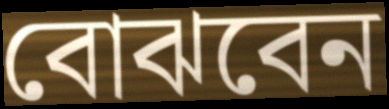
বোঝবেন